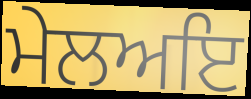
ਮੇਲਅਇ